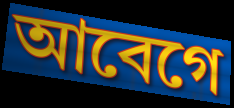
আবেগে